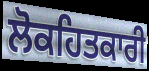
ਲੋਕਹਿਤਕਾਰੀ